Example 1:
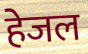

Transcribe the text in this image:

हेजल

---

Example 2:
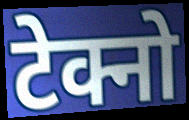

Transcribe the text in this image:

टेक्नो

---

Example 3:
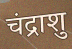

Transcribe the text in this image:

चंद्राशु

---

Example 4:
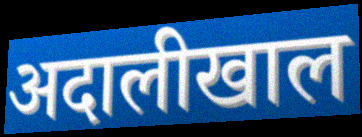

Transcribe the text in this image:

अदालीखाल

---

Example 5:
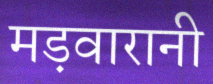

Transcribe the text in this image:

मड़वारानी